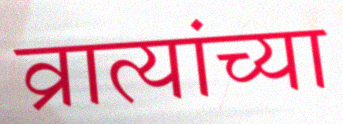
व्रात्यांच्या